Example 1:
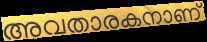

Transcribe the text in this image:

അവതാരകനാണ്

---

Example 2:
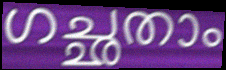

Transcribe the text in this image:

ഗച്ഛതാം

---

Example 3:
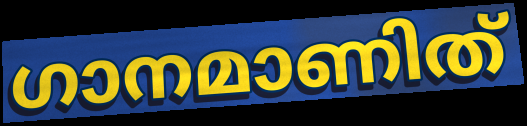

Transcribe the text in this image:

ഗാനമാണിത്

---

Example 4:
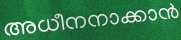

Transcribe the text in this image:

അധീനനാക്കാൻ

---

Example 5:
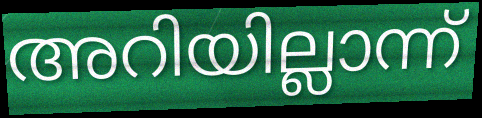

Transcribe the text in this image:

അറിയില്ലാന്ന്